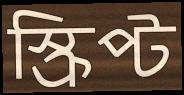
স্ক্ৰিপ্ট